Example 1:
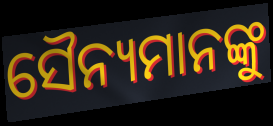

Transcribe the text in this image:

ସୈନ୍ୟମାନଙ୍କୁ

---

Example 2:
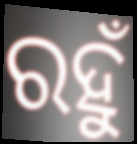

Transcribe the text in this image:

ରହୁଁ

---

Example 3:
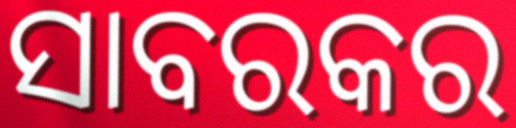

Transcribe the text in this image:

ସାବରକର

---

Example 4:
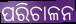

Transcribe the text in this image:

ପରିଚାଳନ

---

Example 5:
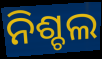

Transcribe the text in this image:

ନିଶ୍ଚଲ